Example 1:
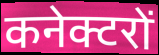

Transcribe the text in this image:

कनेक्टरों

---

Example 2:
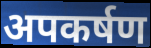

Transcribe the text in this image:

अपकर्षण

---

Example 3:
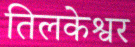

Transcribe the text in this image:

तिलकेश्वर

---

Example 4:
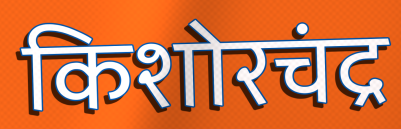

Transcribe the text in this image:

किशोरचंद्र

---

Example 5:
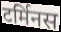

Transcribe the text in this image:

टर्मिनस